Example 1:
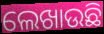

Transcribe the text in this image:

ଲେଖାଉଛି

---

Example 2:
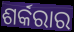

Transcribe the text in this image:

ଶର୍କରାର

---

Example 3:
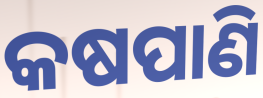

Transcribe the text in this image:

କଷପାଣି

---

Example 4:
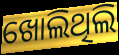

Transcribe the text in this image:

ଖୋଲିଥିଲି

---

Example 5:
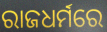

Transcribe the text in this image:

ରାଜଧର୍ମରେ